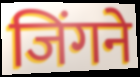
जिंगने